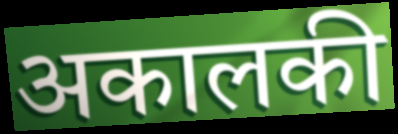
अकालकी